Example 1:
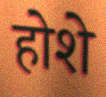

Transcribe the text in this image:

होशे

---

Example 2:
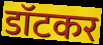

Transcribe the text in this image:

डॉटकर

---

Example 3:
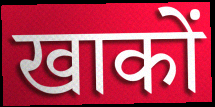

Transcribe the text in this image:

खाकों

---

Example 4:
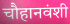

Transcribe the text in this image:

चौहानवंशी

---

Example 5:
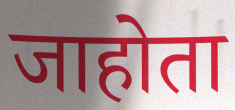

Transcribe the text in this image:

जाहोता